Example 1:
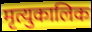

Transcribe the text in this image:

मृत्युकालिक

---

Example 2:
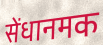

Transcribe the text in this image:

सेंधानमक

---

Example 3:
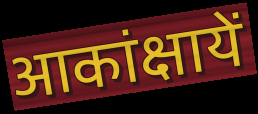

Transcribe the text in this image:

आकांक्षायें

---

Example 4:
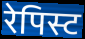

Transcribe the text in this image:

रेपिस्ट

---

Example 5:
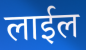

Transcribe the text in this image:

लाईल